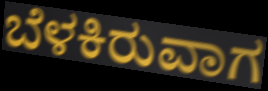
ಬೆಳಕಿರುವಾಗ